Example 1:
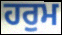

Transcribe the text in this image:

ਹਰੁਮ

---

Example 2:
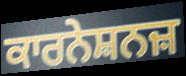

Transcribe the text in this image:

ਕਾਰਨੇਸ਼ਨਜ਼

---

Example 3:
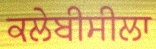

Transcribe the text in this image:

ਕਲੇਬੀਸੀਲਾ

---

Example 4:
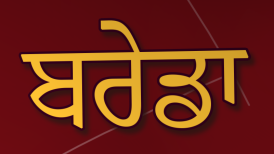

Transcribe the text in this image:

ਬਰੇਡਾ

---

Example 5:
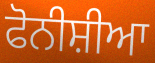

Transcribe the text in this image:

ਫੋਨੀਸ਼ੀਆ